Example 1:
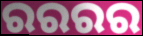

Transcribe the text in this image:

ରରରର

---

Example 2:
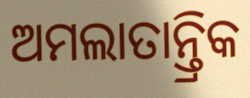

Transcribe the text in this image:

ଅମଲାତାନ୍ତ୍ରିକ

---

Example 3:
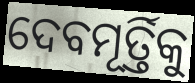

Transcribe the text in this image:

ଦେବମୂର୍ତ୍ତିକୁ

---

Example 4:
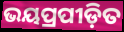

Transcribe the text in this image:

ଭୟପ୍ରପୀଡ଼ିତ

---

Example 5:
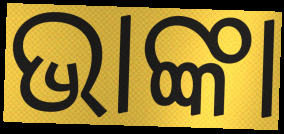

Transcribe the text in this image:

ଭାଙ୍କା